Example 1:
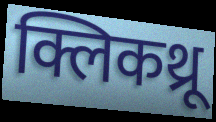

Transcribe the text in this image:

क्लिकथ्रू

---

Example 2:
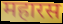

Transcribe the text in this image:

महारस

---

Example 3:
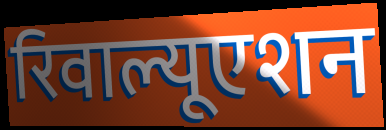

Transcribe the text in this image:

रिवाल्यूएशन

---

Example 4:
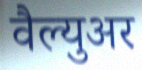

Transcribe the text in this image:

वैल्युअर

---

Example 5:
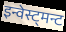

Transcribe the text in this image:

इन्वेस्ट्मन्ट